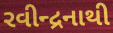
રવીન્દ્રનાથી